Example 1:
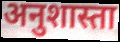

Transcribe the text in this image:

अनुशास्ता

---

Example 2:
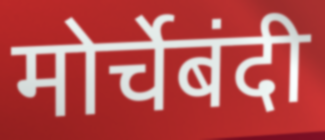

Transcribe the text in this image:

मोर्चेबंदी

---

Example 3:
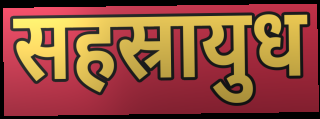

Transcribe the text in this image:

सहस्रायुध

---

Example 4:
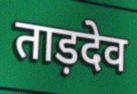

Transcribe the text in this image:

ताड़देव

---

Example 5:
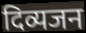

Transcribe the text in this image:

दिव्यजन